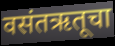
वसंतऋतूचा